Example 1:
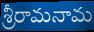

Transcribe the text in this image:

శ్రీరామనామ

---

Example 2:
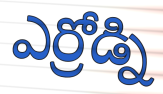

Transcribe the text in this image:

ఎర్రోడ్ని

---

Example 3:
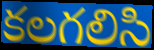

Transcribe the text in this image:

కలగలిసి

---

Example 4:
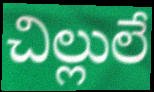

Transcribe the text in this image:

చిల్లులే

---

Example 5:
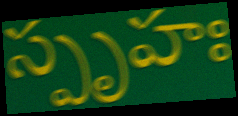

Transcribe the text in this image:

స్పృహః